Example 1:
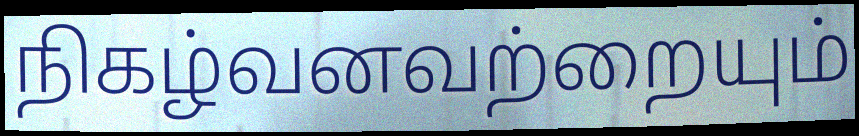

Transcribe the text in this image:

நிகழ்வனவற்றையும்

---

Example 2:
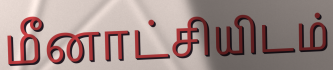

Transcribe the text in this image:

மீனாட்சியிடம்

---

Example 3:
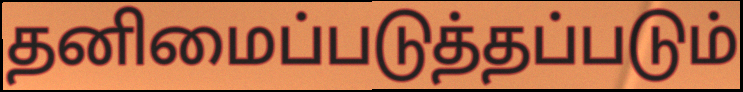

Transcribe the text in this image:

தனிமைப்படுத்தப்படும்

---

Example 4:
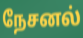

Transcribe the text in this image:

நேசனல்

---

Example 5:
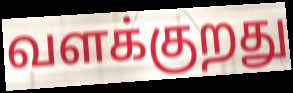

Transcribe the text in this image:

வளக்குறது